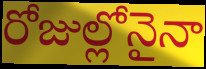
రోజుల్లోనైనా